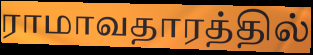
ராமாவதாரத்தில்